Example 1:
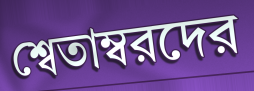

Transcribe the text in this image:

শ্বেতাম্বরদের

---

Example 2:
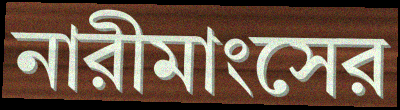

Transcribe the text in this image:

নারীমাংসের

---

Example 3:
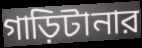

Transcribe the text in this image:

গাড়িটানার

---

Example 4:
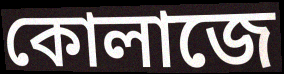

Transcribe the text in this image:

কোলাজে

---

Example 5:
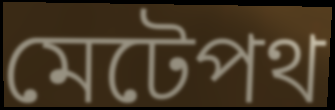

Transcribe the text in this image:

মেটেপথ